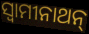
ସ୍ୱାମୀନାଥନ୍